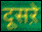
दूसऱे